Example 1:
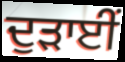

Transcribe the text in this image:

ਦੁੜਾਈਂ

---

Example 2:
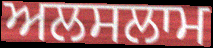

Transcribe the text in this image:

ਅਲਸਲਾਮ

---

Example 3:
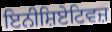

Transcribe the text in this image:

ਇਨੀਸ਼ਿਏਟਿਵਜ਼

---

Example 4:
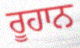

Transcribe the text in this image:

ਰੂਹਾਨ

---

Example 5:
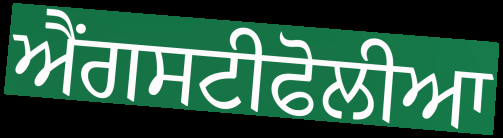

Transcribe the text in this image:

ਐਂਗਸਟੀਫੋਲੀਆ